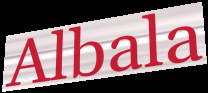
Albala